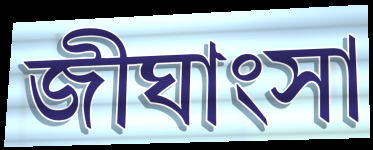
জীঘাংসা